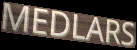
MEDLARS